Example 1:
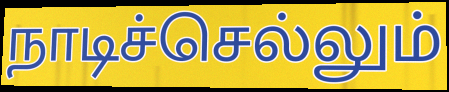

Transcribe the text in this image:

நாடிச்செல்லும்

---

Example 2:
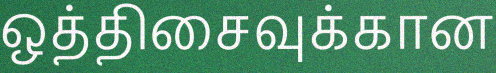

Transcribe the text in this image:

ஒத்திசைவுக்கான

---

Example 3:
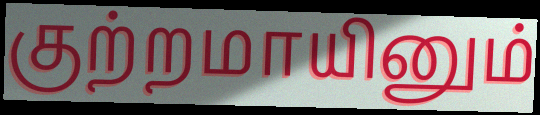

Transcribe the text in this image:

குற்றமாயினும்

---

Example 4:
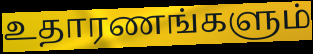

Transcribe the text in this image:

உதாரணங்களும்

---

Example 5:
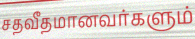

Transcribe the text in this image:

சதவீதமானவர்களும்